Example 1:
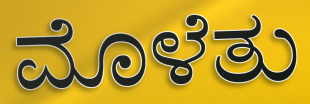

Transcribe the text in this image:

ಮೊಳೆತು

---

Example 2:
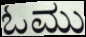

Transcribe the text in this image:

ಓಮು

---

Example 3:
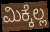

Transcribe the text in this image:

ಮಿಕ್ಕೆಲ್ಲ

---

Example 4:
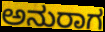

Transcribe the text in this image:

ಅನುರಾಗ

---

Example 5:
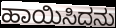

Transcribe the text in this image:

ಹಾಯಿಸಿದನು